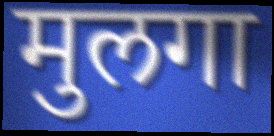
मुलगा